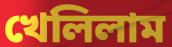
খেলিলাম